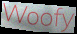
Woofy